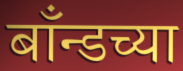
बाँन्डच्या